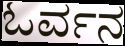
ಓರ್ವನ